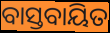
ବାସ୍ତବାୟିତ